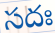
సదః